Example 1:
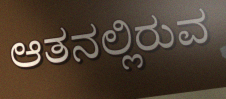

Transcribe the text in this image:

ಆತನಲ್ಲಿರುವ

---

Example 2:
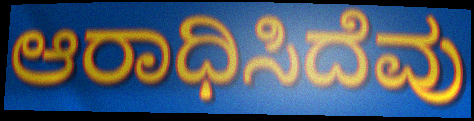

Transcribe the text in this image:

ಆರಾಧಿಸಿದೆವು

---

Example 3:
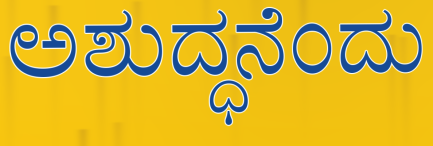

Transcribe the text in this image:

ಅಶುದ್ಧನೆಂದು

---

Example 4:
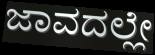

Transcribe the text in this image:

ಜಾವದಲ್ಲೇ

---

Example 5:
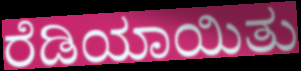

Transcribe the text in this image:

ರೆಡಿಯಾಯಿತು